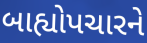
બાહ્યોપચારને